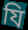
যি